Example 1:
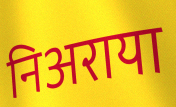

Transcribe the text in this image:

निअराया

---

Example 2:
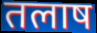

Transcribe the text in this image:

तलाष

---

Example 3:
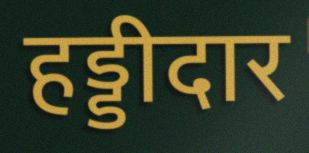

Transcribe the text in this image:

हड्डीदार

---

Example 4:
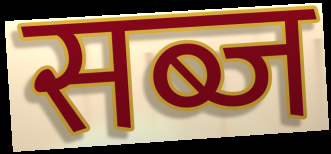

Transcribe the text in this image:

सब्ज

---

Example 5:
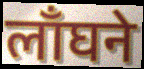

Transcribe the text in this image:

लाँघने